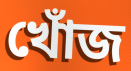
খোঁজ